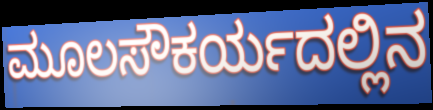
ಮೂಲಸೌಕರ್ಯದಲ್ಲಿನ